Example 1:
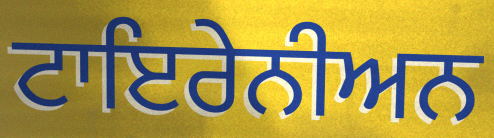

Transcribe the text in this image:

ਟਾਇਰੇਨੀਅਨ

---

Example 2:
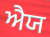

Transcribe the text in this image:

ਐਯ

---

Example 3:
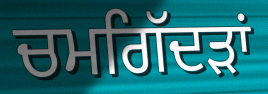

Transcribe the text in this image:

ਚਮਗਿੱਦੜਾਂ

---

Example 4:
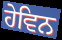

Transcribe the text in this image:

ਹੇਵਿਨ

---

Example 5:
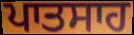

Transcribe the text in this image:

ਪਾਤਸਾਹ